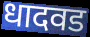
धादवड